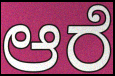
ಆರೆ